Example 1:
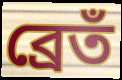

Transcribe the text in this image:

ব্রেতঁ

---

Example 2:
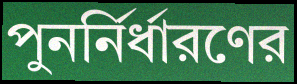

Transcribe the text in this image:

পুনর্নির্ধারণের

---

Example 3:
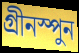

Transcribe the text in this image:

গ্রীনস্পুন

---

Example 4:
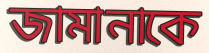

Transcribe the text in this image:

জামানাকে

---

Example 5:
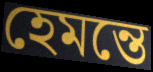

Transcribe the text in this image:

হেমন্তে